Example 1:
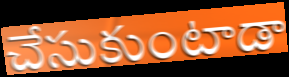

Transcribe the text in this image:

చేసుకుంటాడా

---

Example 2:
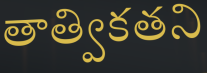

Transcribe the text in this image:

తాత్వికతని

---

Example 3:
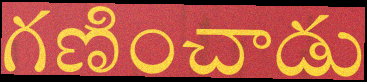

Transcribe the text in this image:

గణించాడు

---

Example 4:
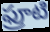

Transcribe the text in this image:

ఫ్రూటి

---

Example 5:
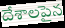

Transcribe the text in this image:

దేశాలపైన